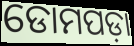
ଡୋମପଡ଼ା